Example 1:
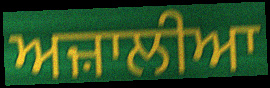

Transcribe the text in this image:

ਅਜ਼ਾਲੀਆ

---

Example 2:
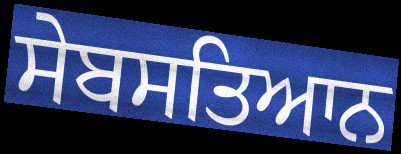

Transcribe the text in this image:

ਸੇਬਸਤਿਆਨ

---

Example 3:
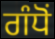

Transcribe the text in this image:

ਗੰਧੋਂ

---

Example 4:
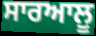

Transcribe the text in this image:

ਸਾਰਆਲੂ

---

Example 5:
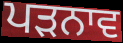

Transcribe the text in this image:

ਪੜਨਾਵ